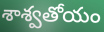
శాశ్వతోయం